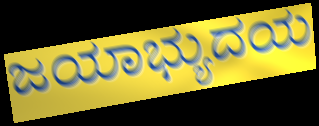
ಜಯಾಭ್ಯುದಯ